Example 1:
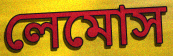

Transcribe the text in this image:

লেমোস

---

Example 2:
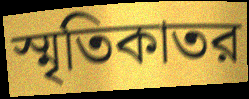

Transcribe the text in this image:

স্মৃতিকাতর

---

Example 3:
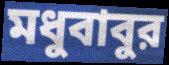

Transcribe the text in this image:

মধুবাবুর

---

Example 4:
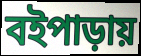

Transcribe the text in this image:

বইপাড়ায়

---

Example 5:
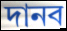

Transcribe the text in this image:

দানব